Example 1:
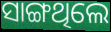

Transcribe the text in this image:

ସାଙ୍ଗଥିଲେ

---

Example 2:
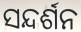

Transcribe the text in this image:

ସନ୍ଦର୍ଶନ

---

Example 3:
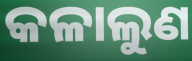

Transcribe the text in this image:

କଳାଲୁଣ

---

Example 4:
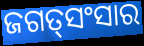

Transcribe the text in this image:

ଜଗତ୍‌ସଂସାର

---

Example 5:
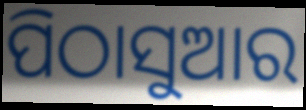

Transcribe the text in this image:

ପିଠାସୁଆର